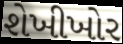
શેખીખોર